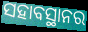
ସହାବସ୍ଥାନର